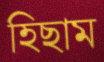
হিছাম